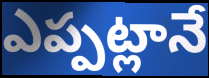
ఎప్పట్లానే